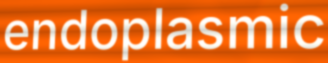
endoplasmic